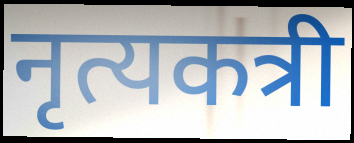
नृत्यकत्री